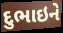
દુભાઇને